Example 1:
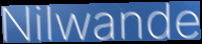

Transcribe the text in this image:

Nilwande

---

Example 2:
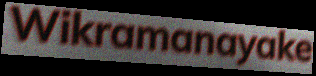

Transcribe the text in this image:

Wikramanayake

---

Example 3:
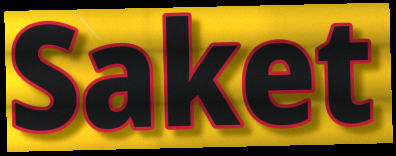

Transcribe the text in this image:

Saket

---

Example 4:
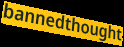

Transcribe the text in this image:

bannedthought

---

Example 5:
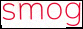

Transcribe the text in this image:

smog